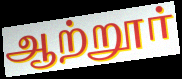
ஆற்றூர்